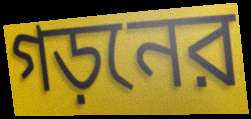
গড়নের